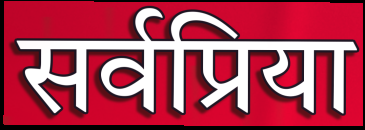
सर्वप्रिया